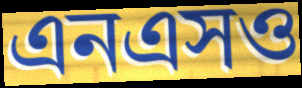
এনএসও